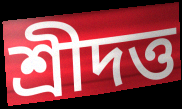
শ্রীদত্ত